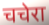
चचेरा